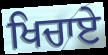
ਖਿਚਾਏ